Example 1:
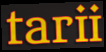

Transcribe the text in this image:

tarii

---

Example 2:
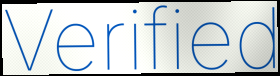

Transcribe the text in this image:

Verified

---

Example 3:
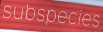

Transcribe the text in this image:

subspecies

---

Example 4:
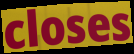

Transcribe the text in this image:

closes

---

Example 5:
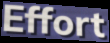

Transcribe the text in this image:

Effort